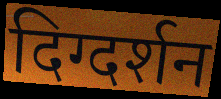
दिग्दर्शन